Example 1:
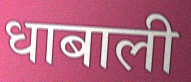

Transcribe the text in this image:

धाबाली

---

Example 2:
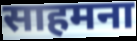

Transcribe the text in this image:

साहमना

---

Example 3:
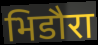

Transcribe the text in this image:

भिडौरा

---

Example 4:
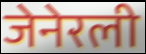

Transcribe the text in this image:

जेनेरली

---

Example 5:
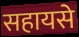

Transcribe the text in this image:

सहायसे